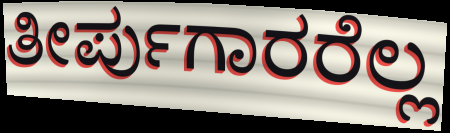
ತೀರ್ಪುಗಾರರೆಲ್ಲ